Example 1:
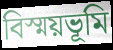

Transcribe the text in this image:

বিস্ময়ভূমি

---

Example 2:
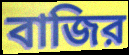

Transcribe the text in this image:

বাজির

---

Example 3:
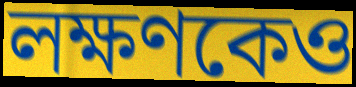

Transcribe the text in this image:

লক্ষণকেও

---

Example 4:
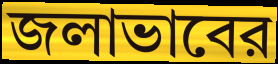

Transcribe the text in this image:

জলাভাবের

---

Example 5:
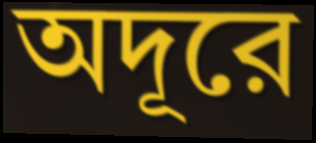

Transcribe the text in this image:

অদূরে